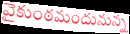
వైకుంఠమందునున్న